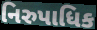
નિરુપાધિક